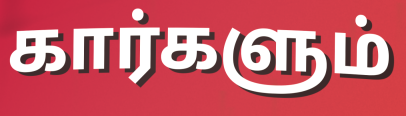
கார்களும்